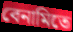
বেনামিতে